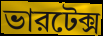
ভারটেক্স